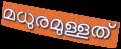
മധുരമുള്ളത്